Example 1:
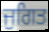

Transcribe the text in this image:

ਜੁਗਿਤ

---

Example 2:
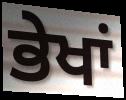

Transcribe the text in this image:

ਭੇਖਾਂ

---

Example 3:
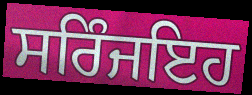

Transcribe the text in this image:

ਸਰਿੰਜਇਹ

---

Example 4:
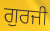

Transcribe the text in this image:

ਗੁਰਜੀ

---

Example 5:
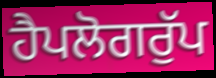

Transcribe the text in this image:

ਹੈਪਲੋਗਰੁੱਪ